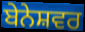
ਬੇਨੇਸ਼ਵਰ